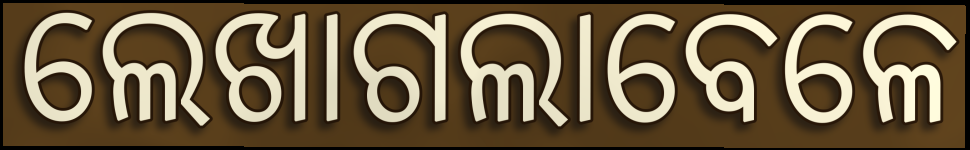
ଲେଖାଗଲାବେଳେ